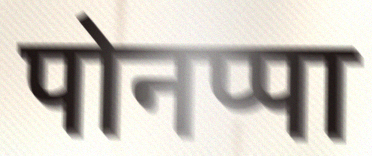
पोनप्पा